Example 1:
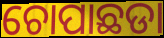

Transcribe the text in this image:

ଚୋପାଛଡା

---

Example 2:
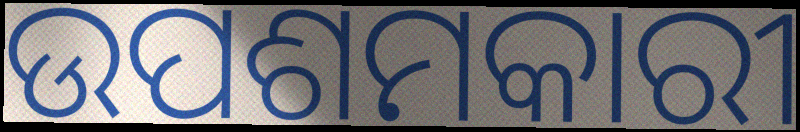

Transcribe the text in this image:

ଉପଶମକାରୀ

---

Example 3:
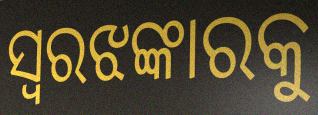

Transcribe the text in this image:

ସ୍ୱରଝଙ୍କାରକୁ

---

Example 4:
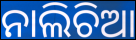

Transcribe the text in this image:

ନାଲିଚିଆ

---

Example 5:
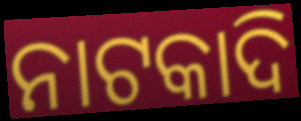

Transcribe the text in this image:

ନାଟକାଦି